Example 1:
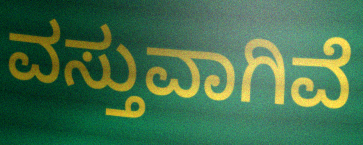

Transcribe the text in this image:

ವಸ್ತುವಾಗಿವೆ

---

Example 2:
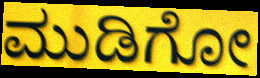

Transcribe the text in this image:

ಮುಡಿಗೋ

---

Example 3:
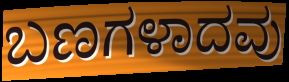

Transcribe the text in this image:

ಬಣಗಳಾದವು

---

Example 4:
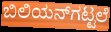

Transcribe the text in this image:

ಬಿಲಿಯನ್‌ಗಟ್ಟಲೆ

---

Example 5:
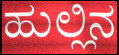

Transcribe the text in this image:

ಹುಲ್ಲಿನ